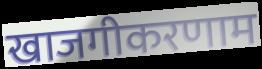
खाजगीकरणाम